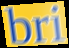
bri